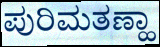
ಪುರಿಮತಣ್ಹಾ